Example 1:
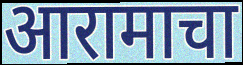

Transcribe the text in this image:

आरामाचा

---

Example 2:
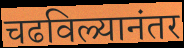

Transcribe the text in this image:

चढविल्यानंतर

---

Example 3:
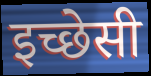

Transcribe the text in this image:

इच्छेसी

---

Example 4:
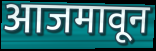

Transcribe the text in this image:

आजमावून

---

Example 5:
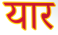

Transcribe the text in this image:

यार